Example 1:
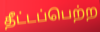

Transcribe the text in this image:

தீட்டப்பெற்ற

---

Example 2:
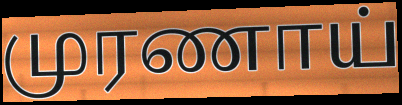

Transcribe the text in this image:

முரணாய்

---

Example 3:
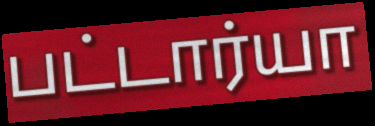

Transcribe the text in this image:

பட்டார்யா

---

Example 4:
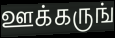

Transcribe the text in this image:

ஊக்கருங்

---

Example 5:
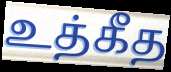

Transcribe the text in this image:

உத்கீத